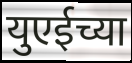
युएईच्या